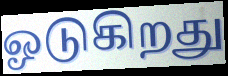
ஓடுகிறது